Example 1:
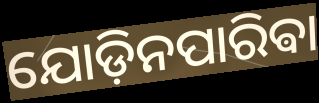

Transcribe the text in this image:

ଯୋଡ଼ିନପାରିଵା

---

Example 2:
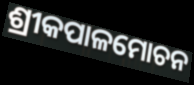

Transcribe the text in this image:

ଶ୍ରୀକପାଳମୋଚନ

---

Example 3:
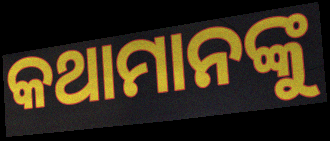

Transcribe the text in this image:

କଥାମାନଙ୍କୁ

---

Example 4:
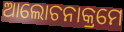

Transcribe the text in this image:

ଆଲୋଚନାକ୍ରମେ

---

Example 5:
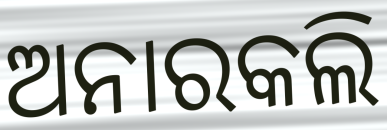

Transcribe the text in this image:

ଅନାରକଲି